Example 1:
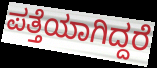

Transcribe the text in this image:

ಪತ್ತೆಯಾಗಿದ್ದರೆ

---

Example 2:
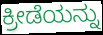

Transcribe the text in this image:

ಕ್ರೀಡೆಯನ್ನು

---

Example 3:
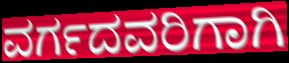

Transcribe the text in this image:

ವರ್ಗದವರಿಗಾಗಿ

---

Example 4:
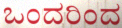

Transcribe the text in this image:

ಒಂದರಿಂದ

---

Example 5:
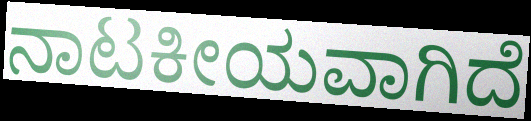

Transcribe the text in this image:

ನಾಟಕೀಯವಾಗಿದೆ